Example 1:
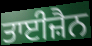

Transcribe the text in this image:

ਤਾਈਜ਼ੈਨ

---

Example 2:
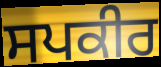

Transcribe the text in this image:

ਸਪਕੀਰ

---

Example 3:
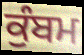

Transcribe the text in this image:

ਕੁੰਬਮ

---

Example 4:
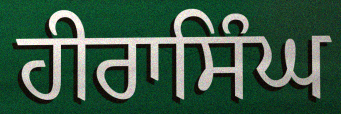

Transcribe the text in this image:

ਹੀਰਾਸਿੰਘ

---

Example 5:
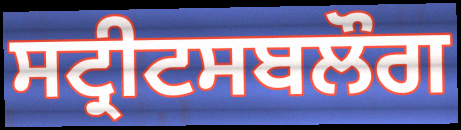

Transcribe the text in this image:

ਸਟ੍ਰੀਟਸਬਲੌਗ